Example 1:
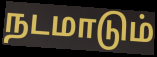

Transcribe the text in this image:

நடமாடும்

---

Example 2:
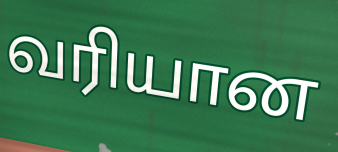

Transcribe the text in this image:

வரியான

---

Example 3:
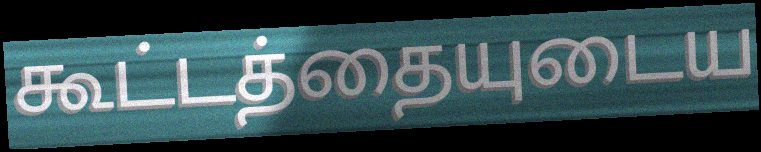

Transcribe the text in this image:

கூட்டத்தையுடைய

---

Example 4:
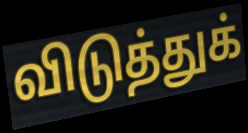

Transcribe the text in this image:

விடுத்துக்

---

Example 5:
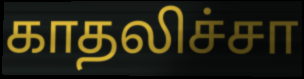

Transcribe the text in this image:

காதலிச்சா